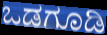
ಒಡಗೂಡಿ